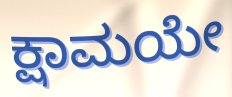
ಕ್ಷಾಮಯೇ